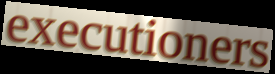
executioners